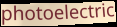
photoelectric